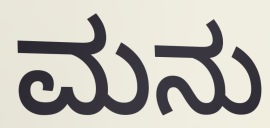
ಮನು